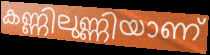
കണ്ണിലുണ്ണിയാണ്